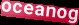
oceanog